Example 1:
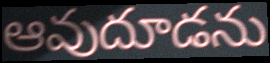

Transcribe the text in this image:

ఆవుదూడను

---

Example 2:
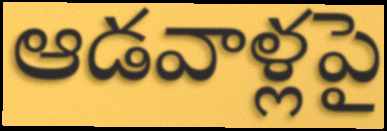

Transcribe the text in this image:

ఆడవాళ్లపై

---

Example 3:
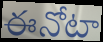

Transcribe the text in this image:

ఈనోటా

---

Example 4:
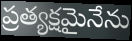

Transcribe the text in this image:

ప్రత్యక్షమైనేను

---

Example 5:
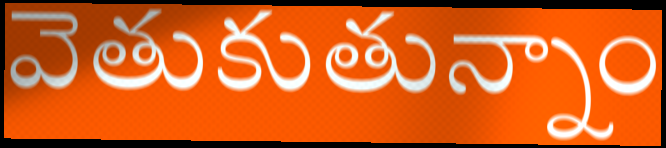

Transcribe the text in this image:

వెతుకుతున్నాం